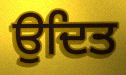
ਉਦਿਤ